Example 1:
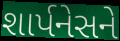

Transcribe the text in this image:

શાર્પનેસને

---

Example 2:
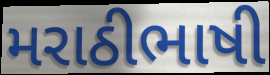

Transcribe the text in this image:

મરાઠીભાષી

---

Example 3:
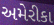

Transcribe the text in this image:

અમેરીકા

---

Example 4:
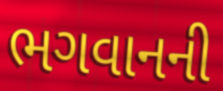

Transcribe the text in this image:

ભગવાનની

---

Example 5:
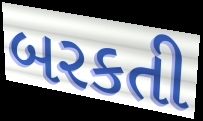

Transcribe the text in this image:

બરકતી